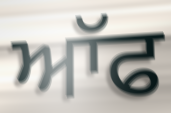
ਆੱਫ